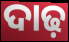
ଦାଢ଼